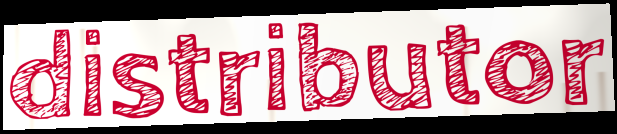
distributor